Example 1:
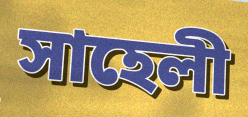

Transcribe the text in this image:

সাহেলী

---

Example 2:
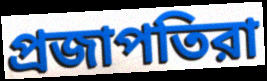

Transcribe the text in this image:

প্রজাপতিরা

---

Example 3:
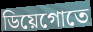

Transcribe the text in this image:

ডিয়েগোতে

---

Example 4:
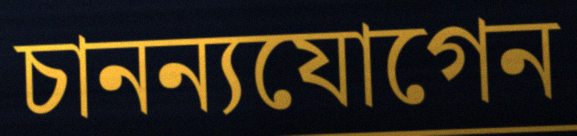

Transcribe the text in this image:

চানন্যযোগেন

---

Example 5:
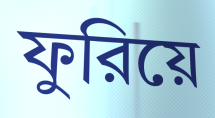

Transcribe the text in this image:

ফুরিয়ে